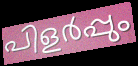
പിളർപ്പും